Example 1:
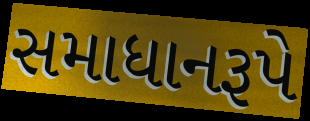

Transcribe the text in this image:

સમાધાનરૂપે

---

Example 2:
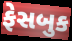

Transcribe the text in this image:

ફેસબુક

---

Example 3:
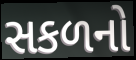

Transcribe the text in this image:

સકળનો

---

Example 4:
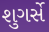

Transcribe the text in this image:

શુગર્સે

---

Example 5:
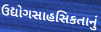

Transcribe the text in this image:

ઉદ્યોગસાહસિકતાનું